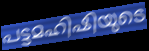
പട്ടമഹിഷിയുടെ